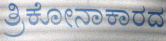
ತ್ರಿಕೋನಾಕಾರದ